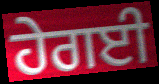
ਹੇਗਈ